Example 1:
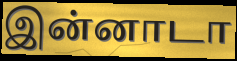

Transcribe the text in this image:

இன்னாடா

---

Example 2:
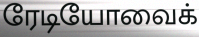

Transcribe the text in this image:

ரேடியோவைக்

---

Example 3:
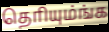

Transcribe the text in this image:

தெரியும்ங்க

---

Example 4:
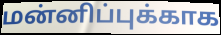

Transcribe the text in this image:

மன்னிப்புக்காக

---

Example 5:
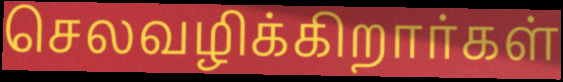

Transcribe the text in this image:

செலவழிக்கிறார்கள்